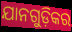
ଯାନଗୁଡ଼ିକର